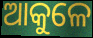
ଆକୁଳେ